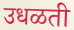
उधळती